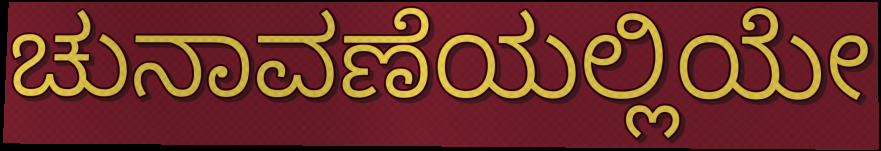
ಚುನಾವಣೆಯಲ್ಲಿಯೇ